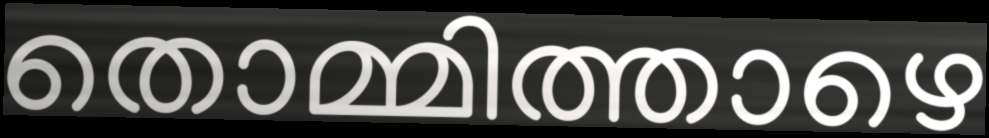
തൊമ്മിത്താഴെ